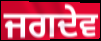
ਜਗਦੇਵ